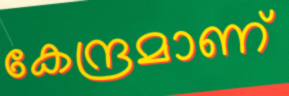
കേന്ദ്രമാണ്